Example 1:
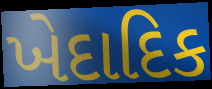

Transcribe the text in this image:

ખેદાદિક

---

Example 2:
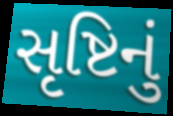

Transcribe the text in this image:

સૃષ્ટિનું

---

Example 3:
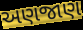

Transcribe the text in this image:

અણજાણ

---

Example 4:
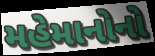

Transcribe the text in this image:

મહેમાનોનો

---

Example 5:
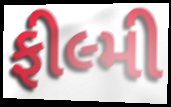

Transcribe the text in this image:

ફીલ્મી